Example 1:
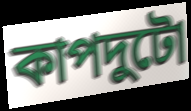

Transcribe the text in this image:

কাপদুটো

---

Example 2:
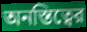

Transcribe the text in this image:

অনস্তিত্বের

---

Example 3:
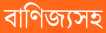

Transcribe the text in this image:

বাণিজ্যসহ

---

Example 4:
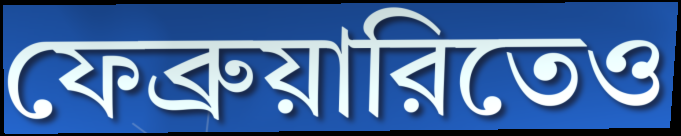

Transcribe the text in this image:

ফেব্রুয়ারিতেও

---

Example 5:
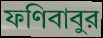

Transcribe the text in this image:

ফণিবাবুর